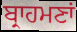
ਬ੍ਰਾਹਮਣਾਂ